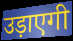
उड़ाएगी